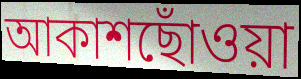
আকাশছোঁওয়া